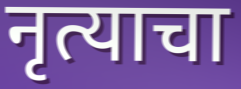
नृत्याचा